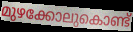
മുഴക്കോലുകൊണ്ട്